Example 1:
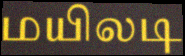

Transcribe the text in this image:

மயிலடி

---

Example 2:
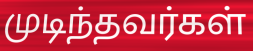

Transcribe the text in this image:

முடிந்தவர்கள்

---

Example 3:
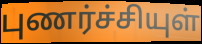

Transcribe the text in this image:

புணர்ச்சியுள்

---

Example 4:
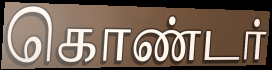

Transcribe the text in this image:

கொண்டர்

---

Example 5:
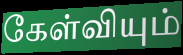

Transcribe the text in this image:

கேள்வியும்